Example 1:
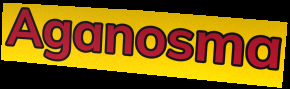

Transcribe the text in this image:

Aganosma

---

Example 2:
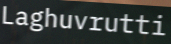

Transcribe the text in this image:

Laghuvrutti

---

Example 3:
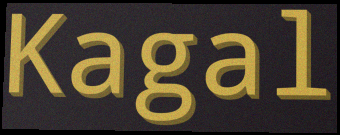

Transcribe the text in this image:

Kagal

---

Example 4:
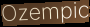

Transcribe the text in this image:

Ozempic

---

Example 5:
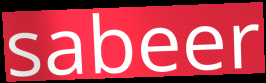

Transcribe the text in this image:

sabeer